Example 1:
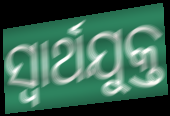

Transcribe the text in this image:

ସ୍ୱାର୍ଥଯୁକ୍ତ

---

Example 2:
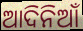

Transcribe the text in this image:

ଆଦିନିଆଁ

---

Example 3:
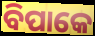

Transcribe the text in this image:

ବିପାକେ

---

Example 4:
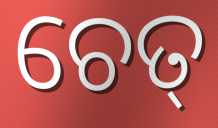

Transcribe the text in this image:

ଚେତ୍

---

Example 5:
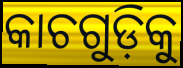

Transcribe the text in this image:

କାଚଗୁଡ଼ିକୁ